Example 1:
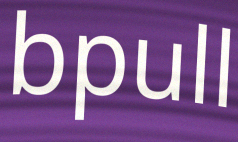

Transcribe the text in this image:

bpull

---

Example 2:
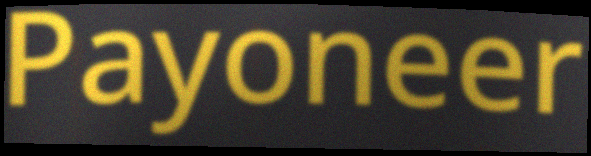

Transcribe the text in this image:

Payoneer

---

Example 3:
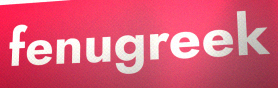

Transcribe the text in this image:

fenugreek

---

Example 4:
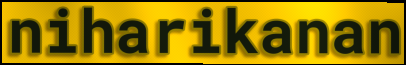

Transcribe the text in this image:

niharikanan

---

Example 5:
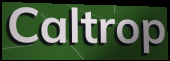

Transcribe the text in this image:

Caltrop